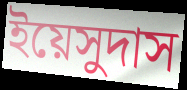
ইয়েসুদাস